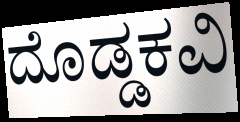
ದೊಡ್ಡಕವಿ